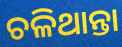
ଚଳିଥାନ୍ତା